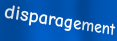
disparagement